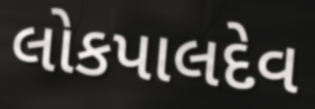
લોકપાલદેવ